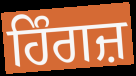
ਹਿੰਗਜ਼